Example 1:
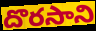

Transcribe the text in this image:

దొరసాని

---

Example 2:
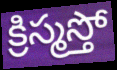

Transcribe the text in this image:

క్రిస్మస్తో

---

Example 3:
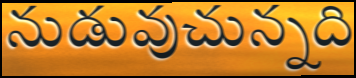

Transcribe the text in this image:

నుడువుచున్నది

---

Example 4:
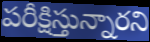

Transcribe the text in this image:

పరీక్షిస్తున్నారని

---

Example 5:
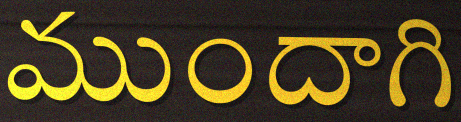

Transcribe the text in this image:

ముందాగి